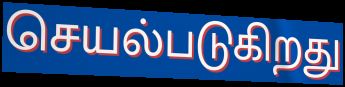
செயல்படுகிறது